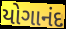
યોગાનંદ